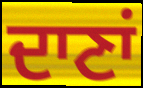
ਦਾਣਾਂ